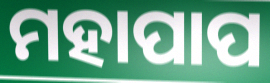
ମହାପାପ